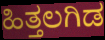
ಹಿತ್ತಲಗಿಡ